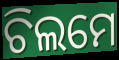
ଚିଲମେ